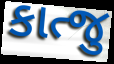
કાત્જુ